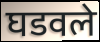
घडवले